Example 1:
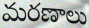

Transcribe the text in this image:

మరణాలు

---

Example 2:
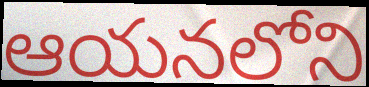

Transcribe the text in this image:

ఆయనలోని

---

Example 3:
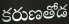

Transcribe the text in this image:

కరుణతోడ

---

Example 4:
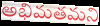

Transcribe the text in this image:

అభిమతమని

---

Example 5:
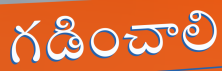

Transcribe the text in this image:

గడించాలి